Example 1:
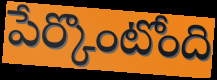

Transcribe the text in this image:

పేర్కొంటోంది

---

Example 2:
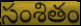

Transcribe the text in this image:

సంశితం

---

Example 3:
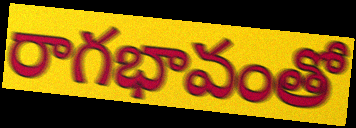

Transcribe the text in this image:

రాగభావంతో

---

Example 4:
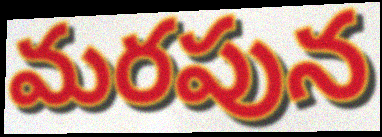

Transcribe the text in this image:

మరపున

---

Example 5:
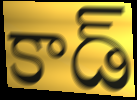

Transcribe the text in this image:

కాడ్